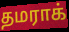
தமராக்